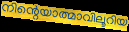
നിന്റെയാത്മാവിലൂറിയ